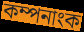
কম্পনাংক